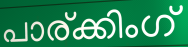
പാര്ക്കിംഗ്